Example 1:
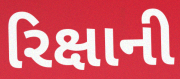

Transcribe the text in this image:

રિક્ષાની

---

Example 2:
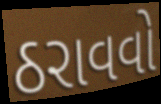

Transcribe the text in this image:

ઠરાવવો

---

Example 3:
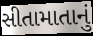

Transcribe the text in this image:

સીતામાતાનું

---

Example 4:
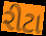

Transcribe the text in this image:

રીટા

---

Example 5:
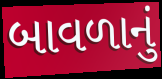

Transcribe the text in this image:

બાવળાનું